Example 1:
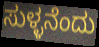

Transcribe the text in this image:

ಸುಳ್ಳನೆಂದು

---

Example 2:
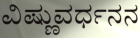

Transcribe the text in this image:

ವಿಷ್ಣುವರ್ಧನನ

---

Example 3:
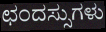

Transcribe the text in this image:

ಛಂದಸ್ಸುಗಳು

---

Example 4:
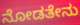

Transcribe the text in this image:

ನೋಡತೇನು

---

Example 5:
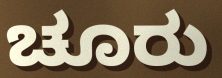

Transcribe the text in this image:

ಚೂರು